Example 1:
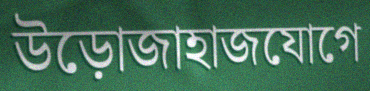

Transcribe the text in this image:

উড়োজাহাজযোগে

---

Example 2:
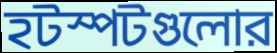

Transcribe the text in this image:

হটস্পটগুলোর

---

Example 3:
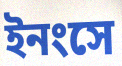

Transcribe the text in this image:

ইনংসে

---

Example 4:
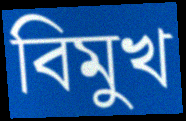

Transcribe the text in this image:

বিমুখ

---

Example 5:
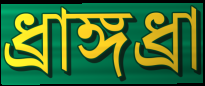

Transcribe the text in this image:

ধ্রাঙ্গধ্রা